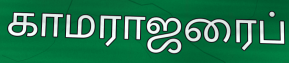
காமராஜரைப்